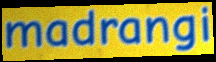
madrangi